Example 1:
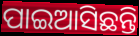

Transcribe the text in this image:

ପାଇଆସିଛନ୍ତି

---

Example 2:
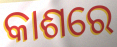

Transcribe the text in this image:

କାଶରେ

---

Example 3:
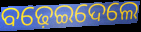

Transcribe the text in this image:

ବଢ଼େଇଦେଲେ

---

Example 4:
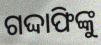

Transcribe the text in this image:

ଗଦ୍ଦାଫିଙ୍କୁ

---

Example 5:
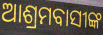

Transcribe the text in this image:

ଆଶ୍ରମବାସୀଙ୍କ